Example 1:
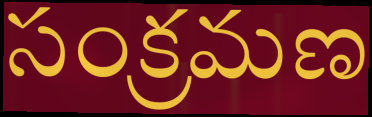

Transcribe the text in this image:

సంక్రమణ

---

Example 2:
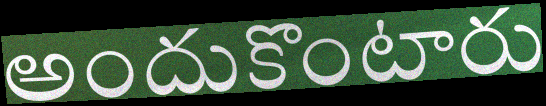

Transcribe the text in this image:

అందుకొంటారు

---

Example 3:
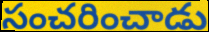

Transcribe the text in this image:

సంచరించాడు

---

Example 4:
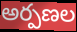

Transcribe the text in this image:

అర్పణల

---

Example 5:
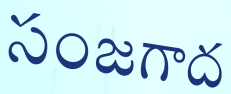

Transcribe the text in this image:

సంజగాద